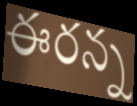
ఈరన్న